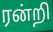
ரன்றி